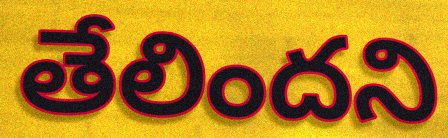
తేలిందని